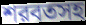
শরবতসহ